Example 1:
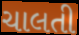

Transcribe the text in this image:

ચાલતી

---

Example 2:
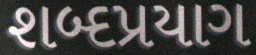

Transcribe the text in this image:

શબ્દપ્રયાગ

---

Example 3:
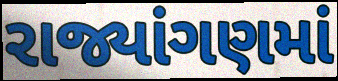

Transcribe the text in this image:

રાજ્યાંગણમાં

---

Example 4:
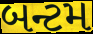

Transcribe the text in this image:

બન્ટમ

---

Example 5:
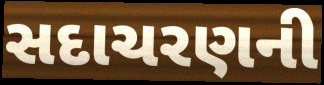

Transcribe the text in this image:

સદાચરણની